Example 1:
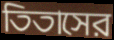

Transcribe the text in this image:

তিতাসের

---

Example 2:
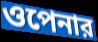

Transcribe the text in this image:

ওপেনার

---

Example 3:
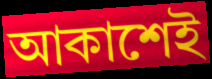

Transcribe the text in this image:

আকাশেই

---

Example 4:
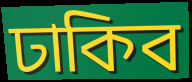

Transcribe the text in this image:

ঢাকিব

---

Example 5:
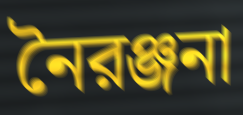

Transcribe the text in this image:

নৈরঞ্জনা